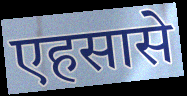
एहसासे